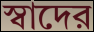
স্বাদের